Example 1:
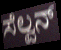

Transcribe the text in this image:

ಸೆಲ್ವನ್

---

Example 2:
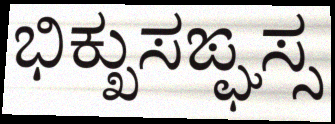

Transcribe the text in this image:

ಭಿಕ್ಖುಸಙ್ಘಸ್ಸ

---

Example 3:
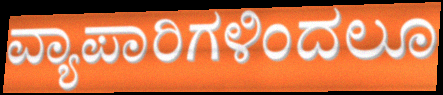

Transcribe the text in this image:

ವ್ಯಾಪಾರಿಗಳಿಂದಲೂ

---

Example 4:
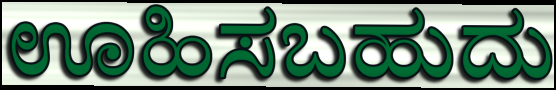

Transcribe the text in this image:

ಊಹಿಸಬಹುದು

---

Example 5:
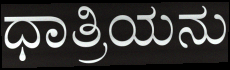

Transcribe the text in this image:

ಧಾತ್ರಿಯನು